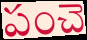
పంచె